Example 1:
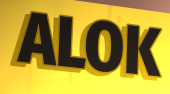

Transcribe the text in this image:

ALOK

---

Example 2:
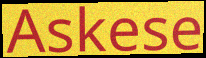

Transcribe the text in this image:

Askese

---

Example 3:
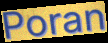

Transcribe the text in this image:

Poran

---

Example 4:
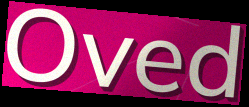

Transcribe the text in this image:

Oved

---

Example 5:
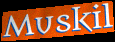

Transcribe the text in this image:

Muskil